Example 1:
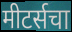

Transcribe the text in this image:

मीटर्सचा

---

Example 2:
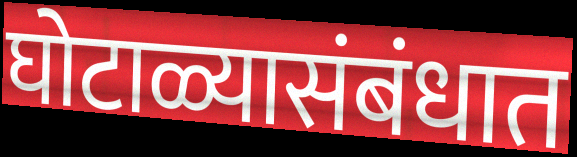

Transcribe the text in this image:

घोटाळ्यासंबंधात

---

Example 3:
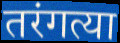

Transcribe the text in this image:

तरंगत्या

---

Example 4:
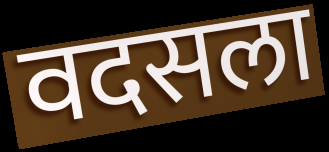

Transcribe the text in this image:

वदसला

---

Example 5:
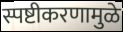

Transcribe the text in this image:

स्पष्टीकरणामुळे